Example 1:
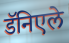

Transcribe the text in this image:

डॅनिएले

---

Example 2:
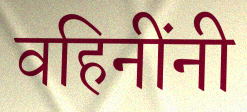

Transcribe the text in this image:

वहिनींनी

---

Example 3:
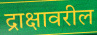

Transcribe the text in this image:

द्राक्षावरील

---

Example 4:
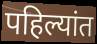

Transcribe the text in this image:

पहिल्यांत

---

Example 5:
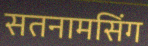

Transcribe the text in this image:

सतनामसिंग